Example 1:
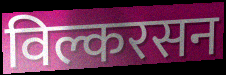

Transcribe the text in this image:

विल्करसन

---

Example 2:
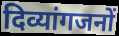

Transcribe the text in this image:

दिव्यांगजनों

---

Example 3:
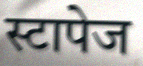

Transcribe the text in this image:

स्टापेज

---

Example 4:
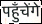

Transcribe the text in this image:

पहुँचेंगे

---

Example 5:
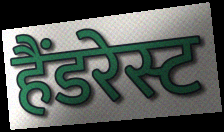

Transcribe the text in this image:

हैंडरेस्ट